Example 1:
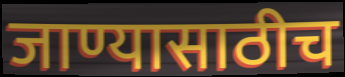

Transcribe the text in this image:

जाण्यासाठीच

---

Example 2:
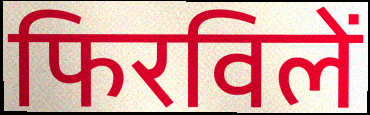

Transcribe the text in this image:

फिरविलें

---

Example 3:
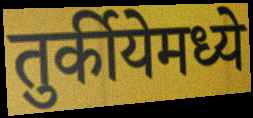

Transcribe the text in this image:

तुर्कीयेमध्ये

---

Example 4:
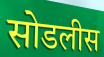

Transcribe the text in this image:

सोडलीस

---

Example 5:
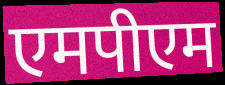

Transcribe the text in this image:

एमपीएम